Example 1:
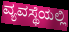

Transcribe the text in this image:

ವ್ಯವಸ್ಥೆಯಲ್ಲಿ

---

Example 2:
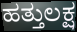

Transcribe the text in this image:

ಹತ್ತುಲಕ್ಷ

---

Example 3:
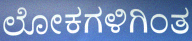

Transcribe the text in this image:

ಲೋಕಗಳಿಗಿಂತ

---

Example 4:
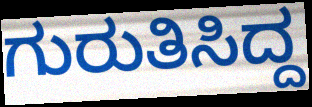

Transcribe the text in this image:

ಗುರುತಿಸಿದ್ದ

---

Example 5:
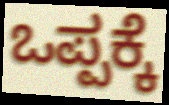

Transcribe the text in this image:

ಒಪ್ಪಕ್ಕೆ